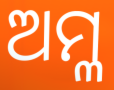
ଅମ୍ଳ